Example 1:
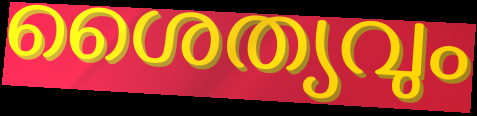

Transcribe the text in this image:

ശൈത്യവും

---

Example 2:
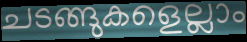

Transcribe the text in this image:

ചടങ്ങുകളെല്ലാം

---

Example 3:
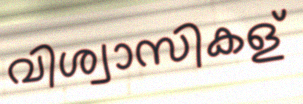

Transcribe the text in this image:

വിശ്വാസികള്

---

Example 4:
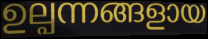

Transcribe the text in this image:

ഉല്പന്നങ്ങളായ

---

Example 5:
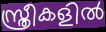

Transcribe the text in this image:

സ്ത്രീകളിൽ